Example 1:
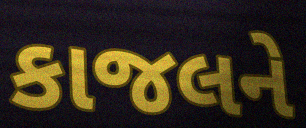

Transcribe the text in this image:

કાજલને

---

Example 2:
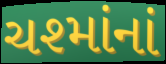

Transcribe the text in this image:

ચશ્માંનાં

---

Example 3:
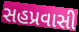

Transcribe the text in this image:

સહપ્રવાસી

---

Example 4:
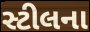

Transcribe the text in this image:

સ્ટીલના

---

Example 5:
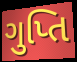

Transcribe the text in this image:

ગુપ્તિ